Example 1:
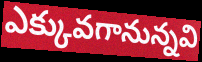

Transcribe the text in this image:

ఎక్కువగానున్నవి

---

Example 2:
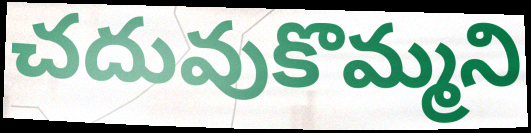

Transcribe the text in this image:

చదువుకొమ్మని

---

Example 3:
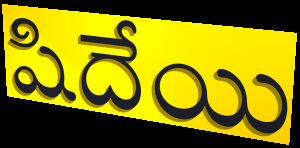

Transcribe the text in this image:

షిదేయి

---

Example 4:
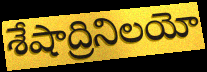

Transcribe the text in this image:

శేషాద్రినిలయో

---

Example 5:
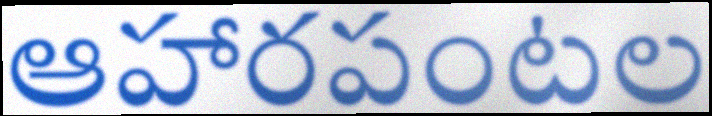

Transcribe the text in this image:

ఆహారపంటల